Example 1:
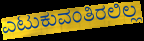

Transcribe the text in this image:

ಎಟುಕುವಂತಿರಲಿಲ್ಲ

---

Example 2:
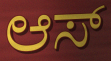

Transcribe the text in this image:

ಆಸ್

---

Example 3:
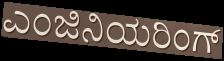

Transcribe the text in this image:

ಎಂಜಿನಿಯರಿಂಗ್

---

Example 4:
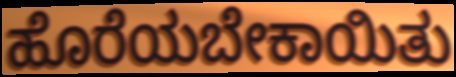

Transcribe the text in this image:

ಹೊರೆಯಬೇಕಾಯಿತು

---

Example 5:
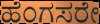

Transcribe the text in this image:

ಹೆಂಗಸರೇ